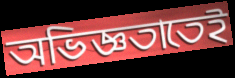
অভিজ্ঞতাতেই